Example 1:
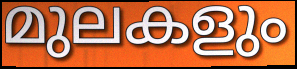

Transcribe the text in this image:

മുലകളും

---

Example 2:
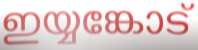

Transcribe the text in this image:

ഇയ്യങ്കോട്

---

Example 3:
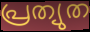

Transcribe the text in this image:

പ്രത്യുത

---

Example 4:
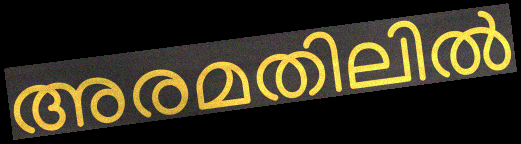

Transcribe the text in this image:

അരമതിലിൽ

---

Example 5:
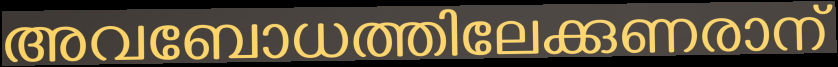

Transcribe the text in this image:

അവബോധത്തിലേക്കുണരാന്